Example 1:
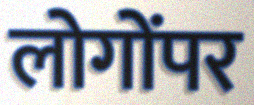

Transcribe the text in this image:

लोगोंपर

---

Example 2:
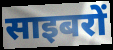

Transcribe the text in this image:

साइबरों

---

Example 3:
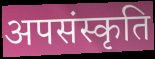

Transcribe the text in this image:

अपसंस्कृति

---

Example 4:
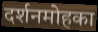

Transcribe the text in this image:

दर्शनमोहका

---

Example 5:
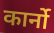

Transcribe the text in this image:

कार्नो